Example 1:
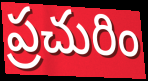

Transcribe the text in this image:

ప్రచురిం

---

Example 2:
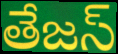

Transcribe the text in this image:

తేజస్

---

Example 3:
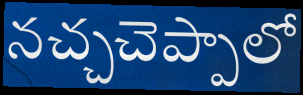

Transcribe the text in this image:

నచ్చచెప్పాలో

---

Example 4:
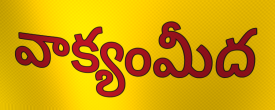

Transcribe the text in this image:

వాక్యంమీద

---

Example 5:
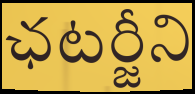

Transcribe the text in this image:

ఛటర్జీని